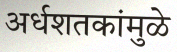
अर्धशतकांमुळे